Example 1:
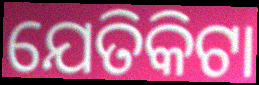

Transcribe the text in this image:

ଯେତିକିଟା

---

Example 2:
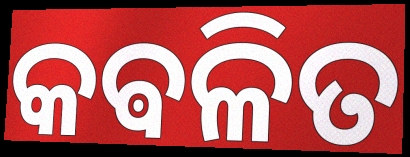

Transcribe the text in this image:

କଵଳିତ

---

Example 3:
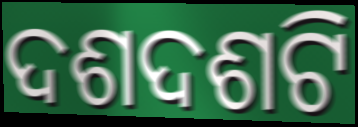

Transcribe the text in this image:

ଦଶଦଶଟି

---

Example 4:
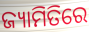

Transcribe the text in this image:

ଜ୍ୟାମିତିରେ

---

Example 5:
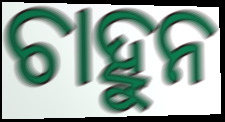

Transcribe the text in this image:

ଚାହୁନ